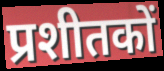
प्रशीतकों